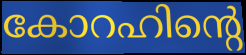
കോറഹിന്റെ